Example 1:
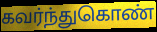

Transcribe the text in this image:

கவர்ந்துகொண்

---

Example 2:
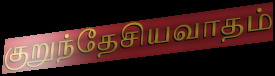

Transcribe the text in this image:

குறுந்தேசியவாதம்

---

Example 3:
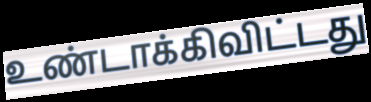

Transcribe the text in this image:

உண்டாக்கிவிட்டது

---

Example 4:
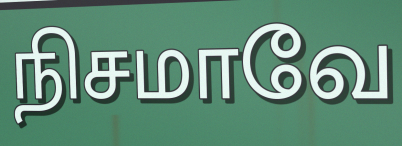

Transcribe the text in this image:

நிசமாவே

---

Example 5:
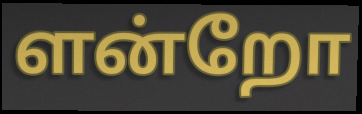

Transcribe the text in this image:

ளன்றோ